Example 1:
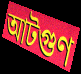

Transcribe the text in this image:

আটগুণ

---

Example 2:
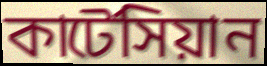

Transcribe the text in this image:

কার্টেসিয়ান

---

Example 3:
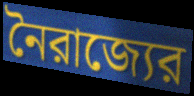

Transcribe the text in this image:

নৈরাজ্যের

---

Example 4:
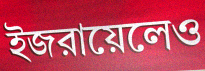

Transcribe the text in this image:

ইজরায়েলেও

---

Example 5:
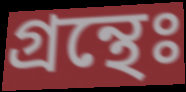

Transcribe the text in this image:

গ্রন্থেঃ